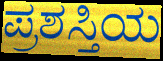
ಪ್ರಶಸ್ತಿಯ